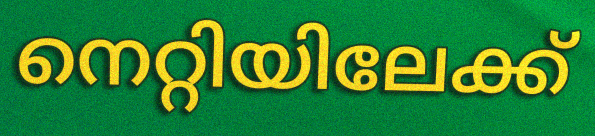
നെറ്റിയിലേക്ക്